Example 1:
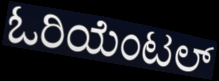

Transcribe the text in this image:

ಓರಿಯೆಂಟಲ್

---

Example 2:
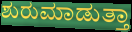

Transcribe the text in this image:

ಶುರುಮಾಡುತ್ತಾ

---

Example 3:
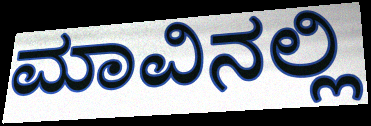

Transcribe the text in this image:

ಮಾವಿನಲ್ಲಿ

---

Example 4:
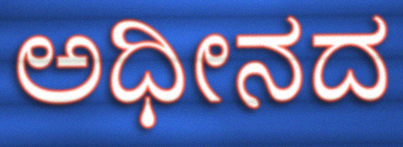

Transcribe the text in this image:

ಅಧೀನದ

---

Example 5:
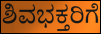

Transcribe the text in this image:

ಶಿವಭಕ್ತರಿಗೆ